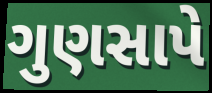
ગુણસાપે